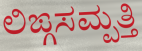
ಲಿಙ್ಗಸಮ್ಪತ್ತಿ